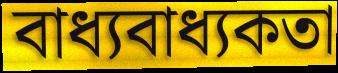
বাধ্যবাধ্যকতা